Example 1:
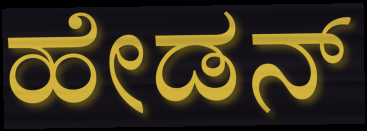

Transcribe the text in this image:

ಹೇಡನ್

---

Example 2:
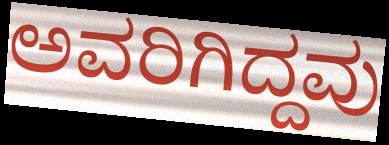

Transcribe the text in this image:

ಅವರಿಗಿದ್ದವು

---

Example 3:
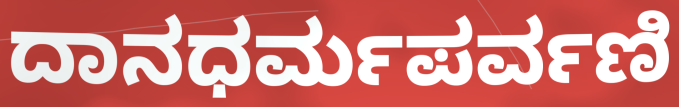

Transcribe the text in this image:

ದಾನಧರ್ಮಪರ್ವಣಿ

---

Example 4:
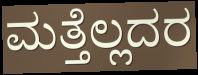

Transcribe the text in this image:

ಮತ್ತೆಲ್ಲದರ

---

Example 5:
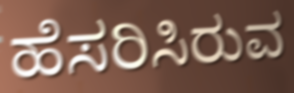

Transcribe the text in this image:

ಹೆಸರಿಸಿರುವ